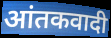
आंतकवादी